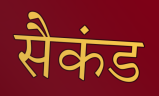
सैकंड